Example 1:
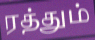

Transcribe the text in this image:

ரத்தும்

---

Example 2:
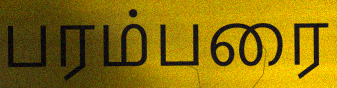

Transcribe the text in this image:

பரம்பரை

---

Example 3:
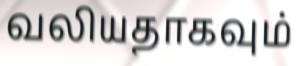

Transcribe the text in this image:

வலியதாகவும்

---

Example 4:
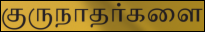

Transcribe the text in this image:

குருநாதர்களை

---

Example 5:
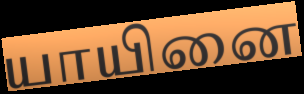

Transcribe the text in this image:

யாயினை